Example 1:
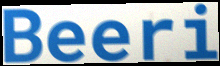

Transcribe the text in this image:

Beeri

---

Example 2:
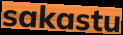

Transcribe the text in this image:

sakastu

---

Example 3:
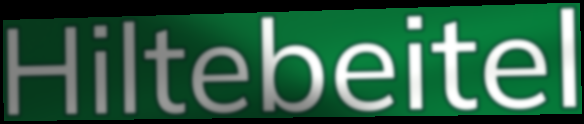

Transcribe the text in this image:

Hiltebeitel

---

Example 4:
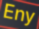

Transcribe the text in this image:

Eny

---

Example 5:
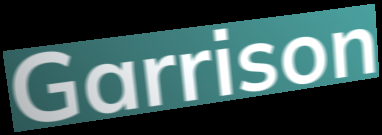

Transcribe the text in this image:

Garrison